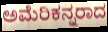
ಅಮೆರಿಕನ್ನರಾದ